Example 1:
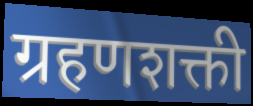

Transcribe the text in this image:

ग्रहणशक्ती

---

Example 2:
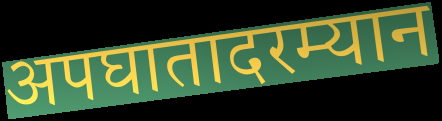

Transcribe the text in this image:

अपघातादरम्यान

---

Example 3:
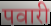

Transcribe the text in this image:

पवारी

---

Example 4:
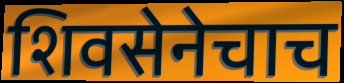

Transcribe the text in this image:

शिवसेनेचाच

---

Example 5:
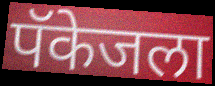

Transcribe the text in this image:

पॅकेजला